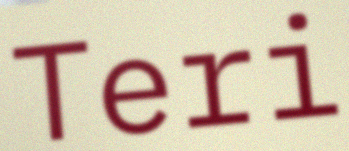
Teri